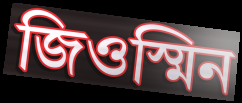
জিওস্মিন